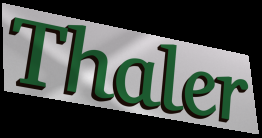
Thaler